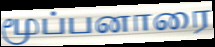
மூப்பனாரை